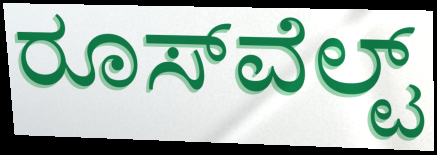
ರೂಸ್‌ವೆಲ್ಟ್